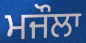
ਮਜੌਲਾ